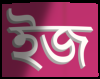
ইজ